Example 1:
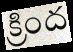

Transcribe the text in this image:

క్రింద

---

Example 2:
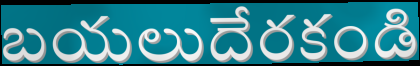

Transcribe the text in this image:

బయలుదేరకండి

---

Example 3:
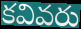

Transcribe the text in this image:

కవివరు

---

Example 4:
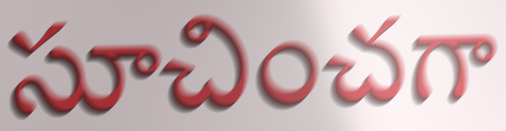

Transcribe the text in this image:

సూచించగా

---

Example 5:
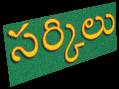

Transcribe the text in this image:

సర్కిలు